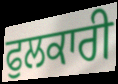
ਫੁਲਕਾਰੀ